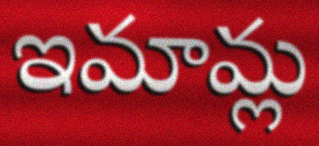
ఇమామ్ల